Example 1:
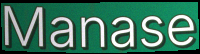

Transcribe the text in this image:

Manase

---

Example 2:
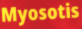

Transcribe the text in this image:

Myosotis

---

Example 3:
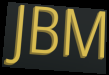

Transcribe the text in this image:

JBM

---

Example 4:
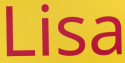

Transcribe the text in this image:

Lisa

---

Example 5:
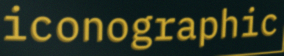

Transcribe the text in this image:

iconographic